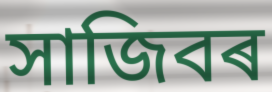
সাজিবৰ